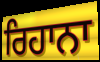
ਰਿਹਾਨਾ